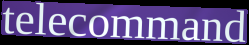
telecommand